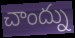
చాంద్ను